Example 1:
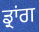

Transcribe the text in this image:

ਡ੍ਰਾਂਗ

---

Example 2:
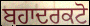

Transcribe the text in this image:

ਬਹਾਦਰਕਟੋ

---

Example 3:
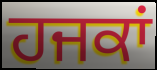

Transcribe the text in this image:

ਹਜਕਾਂ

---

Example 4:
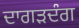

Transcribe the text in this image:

ਦਾਗੜਦੰਗ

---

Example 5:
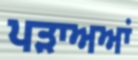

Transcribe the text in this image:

ਪੜਾਅਆਂ